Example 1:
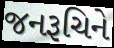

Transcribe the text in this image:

જનરૂચિને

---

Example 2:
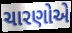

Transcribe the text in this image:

ચારણોએ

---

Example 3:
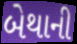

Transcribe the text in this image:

બેથાની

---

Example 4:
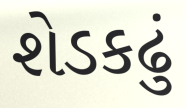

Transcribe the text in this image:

શેડકઢું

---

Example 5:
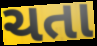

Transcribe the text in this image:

ચતા